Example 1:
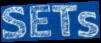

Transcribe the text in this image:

SETs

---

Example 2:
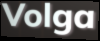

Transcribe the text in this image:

Volga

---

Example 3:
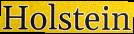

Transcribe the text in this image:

Holstein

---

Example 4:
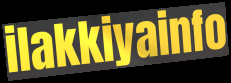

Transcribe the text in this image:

ilakkiyainfo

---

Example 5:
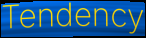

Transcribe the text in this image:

Tendency